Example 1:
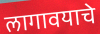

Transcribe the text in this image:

लागावयाचे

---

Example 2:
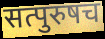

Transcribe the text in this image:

सत्पुरुषच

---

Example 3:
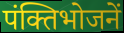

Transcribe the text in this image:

पंक्तिभोजनें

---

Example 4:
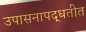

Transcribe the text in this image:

उपासनापद्धतीत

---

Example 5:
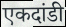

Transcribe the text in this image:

एकदांडी